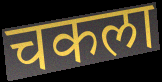
चकला